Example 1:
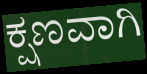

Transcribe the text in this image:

ಕ್ಷಣವಾಗಿ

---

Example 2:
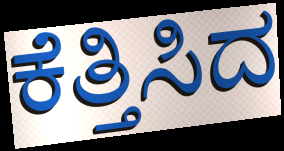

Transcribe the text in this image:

ಕೆತ್ತಿಸಿದ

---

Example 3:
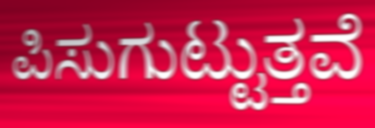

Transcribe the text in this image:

ಪಿಸುಗುಟ್ಟುತ್ತವೆ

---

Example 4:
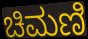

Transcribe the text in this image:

ಚಿಮಣಿ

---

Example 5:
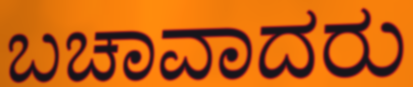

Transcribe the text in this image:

ಬಚಾವಾದರು